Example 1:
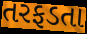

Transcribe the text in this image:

તરફડતા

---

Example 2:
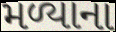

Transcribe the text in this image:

મળ્યાના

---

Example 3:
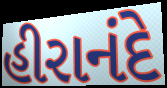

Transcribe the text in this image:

હીરાનંદે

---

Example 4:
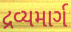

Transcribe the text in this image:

દ્રવ્યમાર્ગ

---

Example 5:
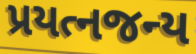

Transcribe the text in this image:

પ્રયત્નજન્ય